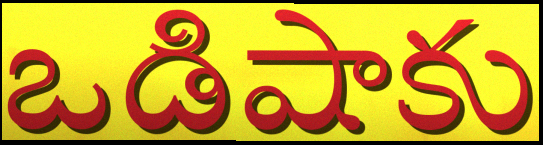
ఒడిషాకు